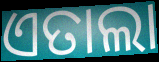
ଏତାଲା